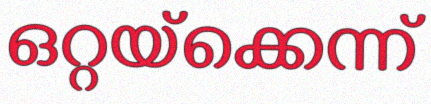
ഒറ്റയ്‌ക്കെന്ന്